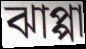
ঝাপ্পা